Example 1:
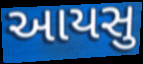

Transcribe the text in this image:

આયસુ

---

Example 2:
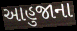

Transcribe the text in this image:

આહુજાના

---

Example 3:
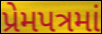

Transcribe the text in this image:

પ્રેમપત્રમાં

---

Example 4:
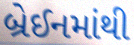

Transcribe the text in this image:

બ્રેઈનમાંથી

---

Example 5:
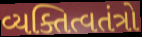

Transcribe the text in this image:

વ્યક્તિત્વતંત્રો